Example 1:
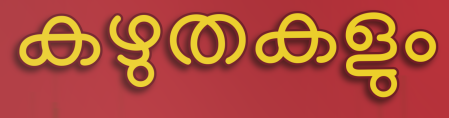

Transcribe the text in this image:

കഴുതകളും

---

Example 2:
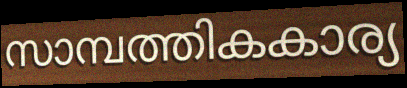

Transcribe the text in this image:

സാമ്പത്തികകാര്യ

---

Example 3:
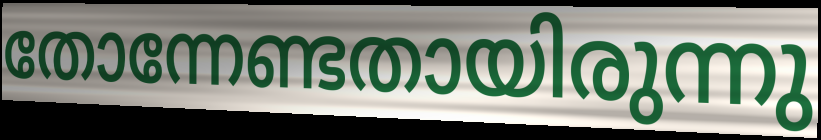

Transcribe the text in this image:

തോന്നേണ്ടതായിരുന്നു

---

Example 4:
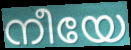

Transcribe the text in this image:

നീയേ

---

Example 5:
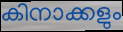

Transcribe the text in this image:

കിനാക്കളും